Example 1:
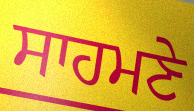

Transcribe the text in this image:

ਸਾਹਮਣੇ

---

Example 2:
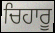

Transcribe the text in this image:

ਚਿਹਾਰੂ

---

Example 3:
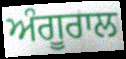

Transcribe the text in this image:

ਅੰਗੂਰਾਲ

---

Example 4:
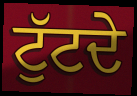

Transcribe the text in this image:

ਟੁੱਟਦੇ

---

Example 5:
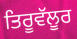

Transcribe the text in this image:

ਤਿਰੂਵੱਲੂਰ